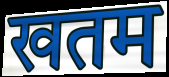
खतम